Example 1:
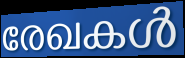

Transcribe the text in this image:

രേഖകൾ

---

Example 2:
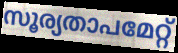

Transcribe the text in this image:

സൂര്യതാപമേറ്റ്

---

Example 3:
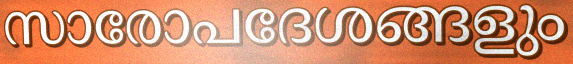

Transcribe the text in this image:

സാരോപദേശങ്ങളും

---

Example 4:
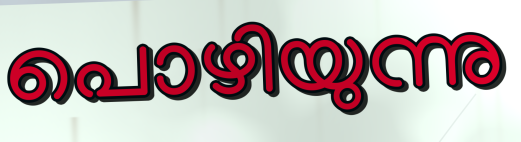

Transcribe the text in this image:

പൊഴിയുന്നു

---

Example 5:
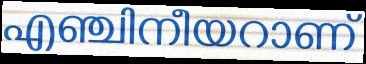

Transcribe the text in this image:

എഞ്ചിനീയറാണ്